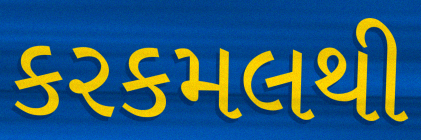
કરકમલથી